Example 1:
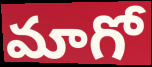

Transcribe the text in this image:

మాగో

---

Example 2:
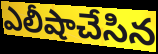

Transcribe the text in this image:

ఎలీషాచేసిన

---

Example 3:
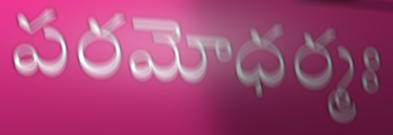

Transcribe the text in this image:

పరమోధర్మః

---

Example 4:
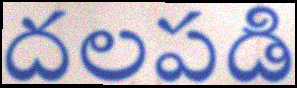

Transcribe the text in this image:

దలపడి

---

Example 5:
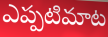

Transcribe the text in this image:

ఎప్పటిమాట